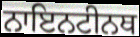
ਨਾਇਨਟੀਨਥ